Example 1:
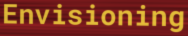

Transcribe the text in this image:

Envisioning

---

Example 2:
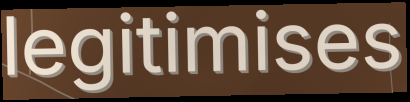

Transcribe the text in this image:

legitimises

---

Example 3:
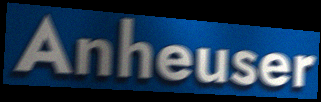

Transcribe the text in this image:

Anheuser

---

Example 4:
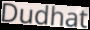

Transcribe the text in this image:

Dudhat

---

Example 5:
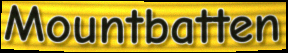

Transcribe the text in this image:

Mountbatten